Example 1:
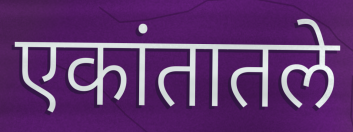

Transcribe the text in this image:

एकांतातले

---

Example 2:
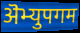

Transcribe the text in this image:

ऄभ्युपगम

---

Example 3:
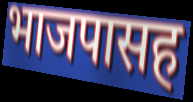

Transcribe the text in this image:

भाजपासह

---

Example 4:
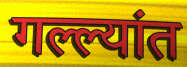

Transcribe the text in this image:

गल्ल्यांत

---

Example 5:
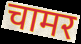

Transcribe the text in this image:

चामर